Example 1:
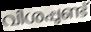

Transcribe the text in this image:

വിശപ്പുണ്ട്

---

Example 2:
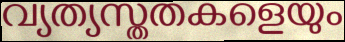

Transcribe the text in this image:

വ്യത്യസ്തതകളെയും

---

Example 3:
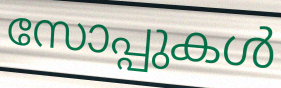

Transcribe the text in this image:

സോപ്പുകൾ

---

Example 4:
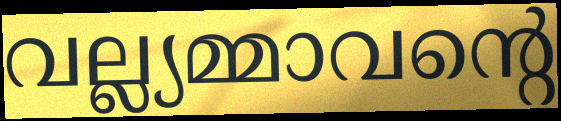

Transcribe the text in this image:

വല്ല്യമ്മാവന്റെ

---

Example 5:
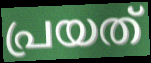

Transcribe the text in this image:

പ്രയത്